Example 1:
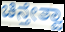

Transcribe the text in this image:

ಚಿನ್ತೇತ್ವಾ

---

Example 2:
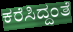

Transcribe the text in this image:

ಕರೆಸಿದ್ದಂತೆ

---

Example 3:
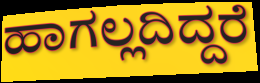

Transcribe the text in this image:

ಹಾಗಲ್ಲದಿದ್ದರೆ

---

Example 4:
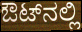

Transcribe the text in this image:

ಔಟ್‌ನಲ್ಲಿ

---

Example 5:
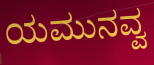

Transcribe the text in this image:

ಯಮುನವ್ವ